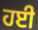
ਹਈ